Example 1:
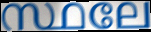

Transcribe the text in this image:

സ്ഥലേ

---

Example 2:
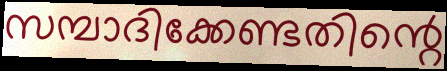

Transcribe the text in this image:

സമ്പാദിക്കേണ്ടതിന്റെ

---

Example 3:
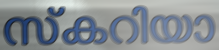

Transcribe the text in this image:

സ്‌കറിയാ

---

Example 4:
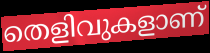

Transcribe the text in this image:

തെളിവുകളാണ്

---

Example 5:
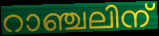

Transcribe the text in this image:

റാഞ്ചലിന്